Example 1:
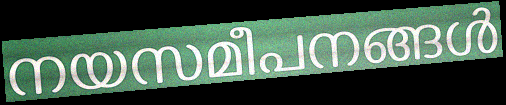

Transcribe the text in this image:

നയസമീപനങ്ങൾ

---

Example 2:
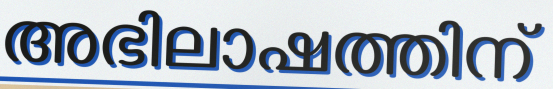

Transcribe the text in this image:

അഭിലാഷത്തിന്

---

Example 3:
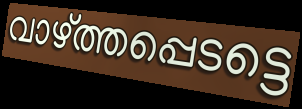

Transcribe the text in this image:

വാഴ്ത്തപ്പെടട്ടെ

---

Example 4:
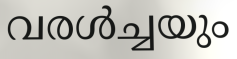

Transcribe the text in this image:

വരൾച്ചയും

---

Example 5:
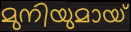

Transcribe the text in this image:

മുനിയുമായ്